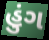
હુંગ